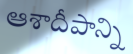
ఆశాదీపాన్ని